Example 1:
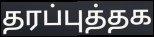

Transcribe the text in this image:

தரப்புத்தக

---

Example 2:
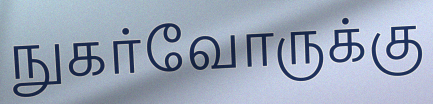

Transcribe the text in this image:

நுகர்வோருக்கு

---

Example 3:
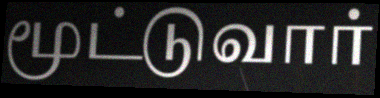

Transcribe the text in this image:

மூட்டுவார்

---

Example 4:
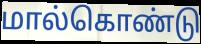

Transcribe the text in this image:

மால்கொண்டு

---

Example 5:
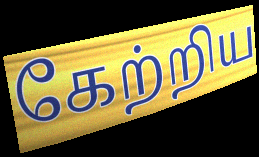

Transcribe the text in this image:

கேற்றிய